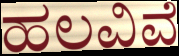
ಹಲವಿವೆ